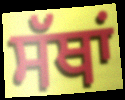
ਸੱਥਾਂ